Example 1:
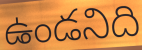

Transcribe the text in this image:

ఉండనిది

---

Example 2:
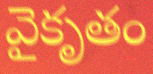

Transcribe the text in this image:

వైకృతం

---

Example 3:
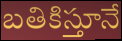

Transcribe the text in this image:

బతికిస్తూనే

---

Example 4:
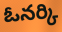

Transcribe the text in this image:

ఓనర్కి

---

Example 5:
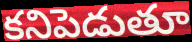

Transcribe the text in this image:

కనిపెడుతూ